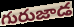
గురుజాడ